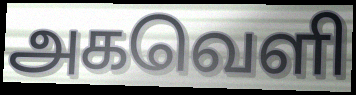
அகவெளி